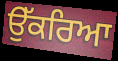
ਉੱਕਰਿਆ